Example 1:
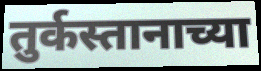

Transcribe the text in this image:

तुर्कस्तानाच्या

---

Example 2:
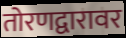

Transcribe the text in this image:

तोरणद्वारावर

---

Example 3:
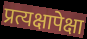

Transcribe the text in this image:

प्रत्यक्षापेक्षा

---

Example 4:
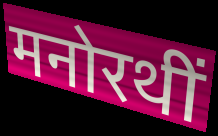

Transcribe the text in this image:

मनोरथीं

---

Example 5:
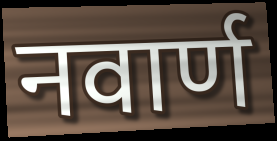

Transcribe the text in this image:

नवार्ण